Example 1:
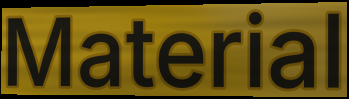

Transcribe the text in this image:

Material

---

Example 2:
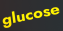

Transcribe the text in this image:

glucose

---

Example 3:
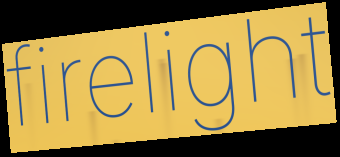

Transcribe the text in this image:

firelight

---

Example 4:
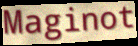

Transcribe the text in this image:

Maginot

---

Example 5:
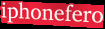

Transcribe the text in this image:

iphonefero